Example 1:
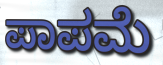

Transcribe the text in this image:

ಪಾಪಮೆ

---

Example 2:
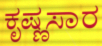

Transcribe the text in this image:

ಕೃಷ್ಣಸಾರ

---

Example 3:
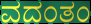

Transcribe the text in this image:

ವದಂತಂ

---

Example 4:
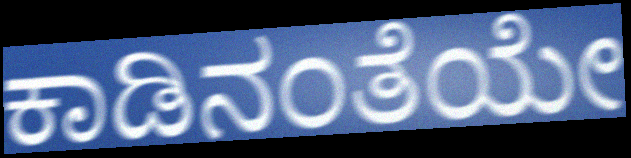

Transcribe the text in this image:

ಕಾಡಿನಂತೆಯೇ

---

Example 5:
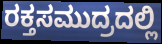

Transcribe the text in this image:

ರಕ್ತಸಮುದ್ರದಲ್ಲಿ